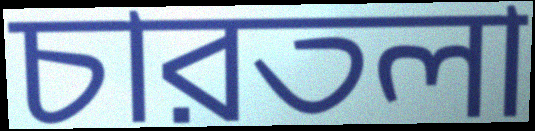
চারতলা